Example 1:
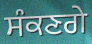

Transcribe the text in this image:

ਸੰਕਣਗੇ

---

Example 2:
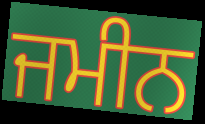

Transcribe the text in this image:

ਜਮੀਨ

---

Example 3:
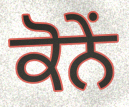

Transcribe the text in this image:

ਕੋਨੇਂ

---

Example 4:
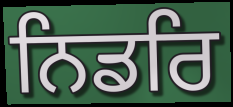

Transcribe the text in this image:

ਨਿਡਰਿ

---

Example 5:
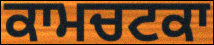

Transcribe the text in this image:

ਕਾਮਚਟਕਾ